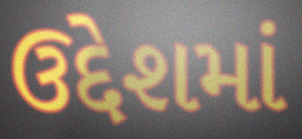
ઉદ્દેશમાં